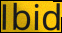
Ibid